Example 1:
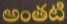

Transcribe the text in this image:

అంతటి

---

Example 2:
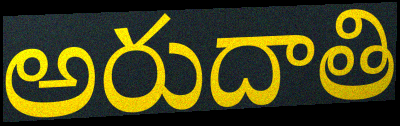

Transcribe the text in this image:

అరుదాతి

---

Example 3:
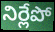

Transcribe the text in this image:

నిర్లేపో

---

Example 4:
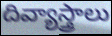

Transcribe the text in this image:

దివ్యాస్త్రాలు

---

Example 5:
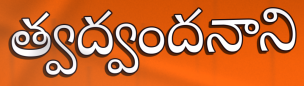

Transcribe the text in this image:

త్వద్వందనాని